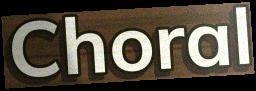
Choral